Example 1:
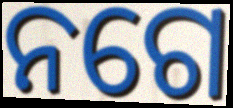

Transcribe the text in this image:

ନଗେ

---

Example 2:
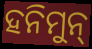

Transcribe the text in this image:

ହନିମୁନ୍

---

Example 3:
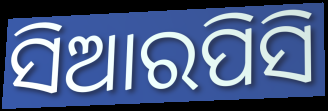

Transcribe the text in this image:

ସିଆରପିସି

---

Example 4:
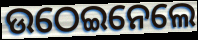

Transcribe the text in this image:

ଉଠେଇନେଲେ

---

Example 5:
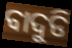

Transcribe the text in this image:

ବାଦୁଡି